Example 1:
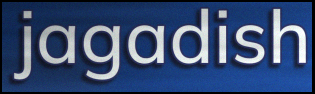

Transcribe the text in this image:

jagadish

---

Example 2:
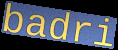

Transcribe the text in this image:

badri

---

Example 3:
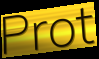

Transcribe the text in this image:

Prot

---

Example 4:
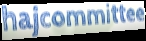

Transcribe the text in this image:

hajcommittee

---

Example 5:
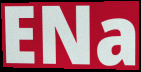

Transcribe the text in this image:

ENa